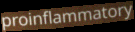
proinflammatory